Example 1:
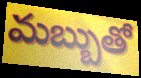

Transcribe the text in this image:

మబ్బుతో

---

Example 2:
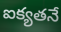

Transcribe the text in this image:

ఐక్యతనే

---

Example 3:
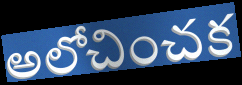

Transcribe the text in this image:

అలోచించక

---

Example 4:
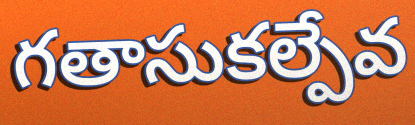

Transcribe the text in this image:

గతాసుకల్పేవ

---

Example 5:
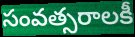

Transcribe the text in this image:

సంవత్సరాలకీ